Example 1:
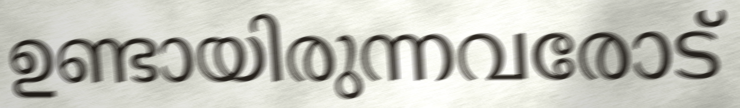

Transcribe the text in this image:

ഉണ്ടായിരുന്നവരോട്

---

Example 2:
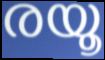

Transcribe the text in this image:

രയൂ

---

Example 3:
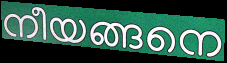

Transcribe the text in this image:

നീയങ്ങനെ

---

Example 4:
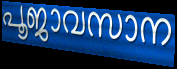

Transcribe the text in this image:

പൂജാവസാന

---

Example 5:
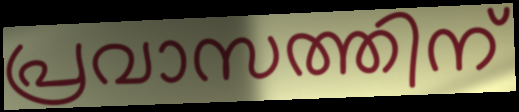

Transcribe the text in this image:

പ്രവാസത്തിന്